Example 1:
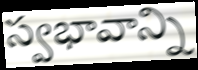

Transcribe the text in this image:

స్వభావాన్ని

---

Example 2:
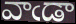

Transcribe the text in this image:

వాఁడా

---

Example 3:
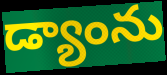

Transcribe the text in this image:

డ్యాంను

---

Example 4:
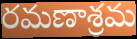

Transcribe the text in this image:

రమణాశ్రమ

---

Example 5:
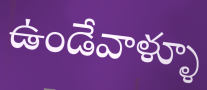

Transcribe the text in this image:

ఉండేవాళ్ళూ